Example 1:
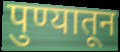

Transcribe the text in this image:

पुण्यातून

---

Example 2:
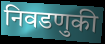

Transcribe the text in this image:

निवडणुकी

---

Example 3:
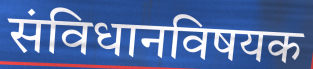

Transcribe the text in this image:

संविधानविषयक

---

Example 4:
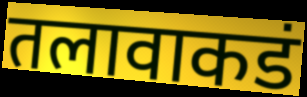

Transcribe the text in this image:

तलावाकडं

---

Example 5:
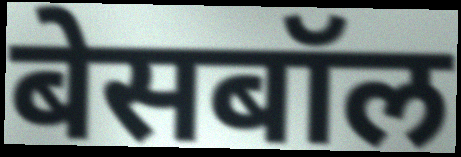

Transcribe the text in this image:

बेसबॉल